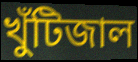
খুঁটিজাল